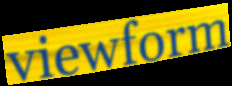
viewform